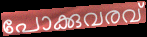
പോക്കുവരവ്